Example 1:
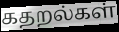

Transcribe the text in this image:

கதறல்கள்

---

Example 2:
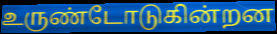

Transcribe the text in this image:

உருண்டோடுகின்றன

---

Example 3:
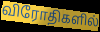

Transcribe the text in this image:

விரோதிகளில்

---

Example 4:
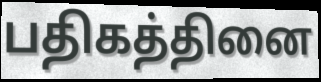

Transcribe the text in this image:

பதிகத்தினை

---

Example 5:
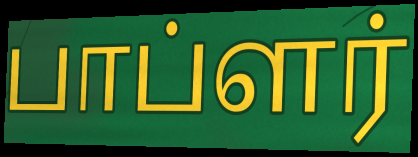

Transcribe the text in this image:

பாப்ளர்